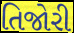
તિજોરી